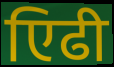
एिढी